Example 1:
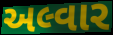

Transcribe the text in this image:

અલ્વાર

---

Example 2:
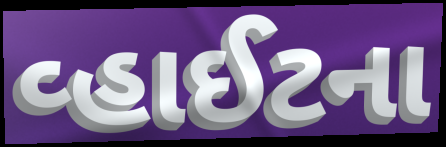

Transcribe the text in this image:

વ્હાઈટના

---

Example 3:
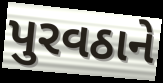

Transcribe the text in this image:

પુરવઠાને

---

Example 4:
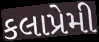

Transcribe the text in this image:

કલાપ્રેમી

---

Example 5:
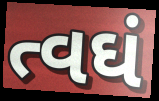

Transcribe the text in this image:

ત્વઘં